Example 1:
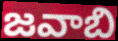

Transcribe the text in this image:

జవాబి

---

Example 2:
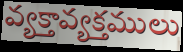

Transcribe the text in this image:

వ్యక్తావ్యక్తములు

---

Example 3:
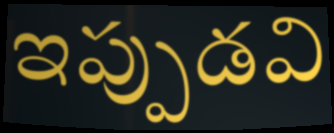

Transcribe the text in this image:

ఇప్పుడవి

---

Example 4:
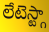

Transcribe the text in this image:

లేటెస్ట్గా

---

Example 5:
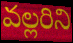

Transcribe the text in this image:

వల్లరిని